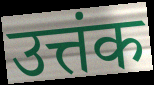
उत्तंक